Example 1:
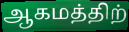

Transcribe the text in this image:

ஆகமத்திற்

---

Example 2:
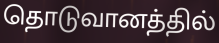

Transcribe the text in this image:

தொடுவானத்தில்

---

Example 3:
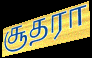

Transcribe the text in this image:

சூதரா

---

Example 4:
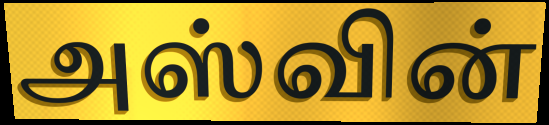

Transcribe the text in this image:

அஸ்வின்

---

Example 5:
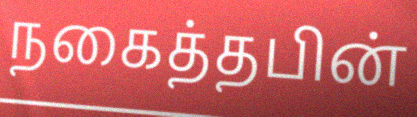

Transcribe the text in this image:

நகைத்தபின்